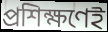
প্রশিক্ষণেই